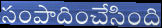
సంపాదించేసింది